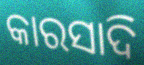
କାରସାଦି